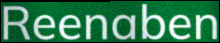
Reenaben